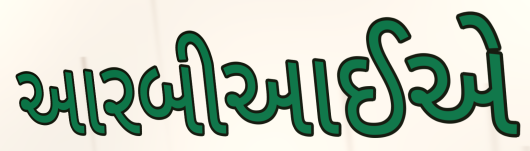
આરબીઆઈએ